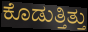
ಕೊಡುತ್ತಿತ್ತು